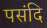
पसंदि